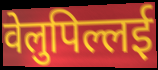
वेलुपिल्लई